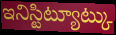
ఇనిస్టిట్యూట్కు